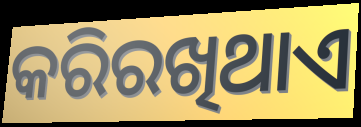
କରିରଖିଥାଏ